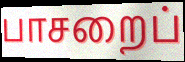
பாசறைப்